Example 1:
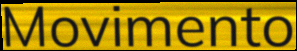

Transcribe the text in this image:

Movimento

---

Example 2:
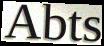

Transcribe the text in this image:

Abts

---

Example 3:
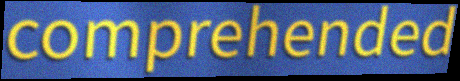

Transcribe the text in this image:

comprehended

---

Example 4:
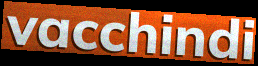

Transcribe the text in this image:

vacchindi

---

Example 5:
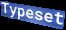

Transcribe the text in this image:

Typeset